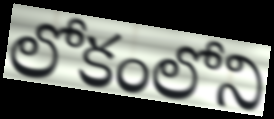
లోకంలోని